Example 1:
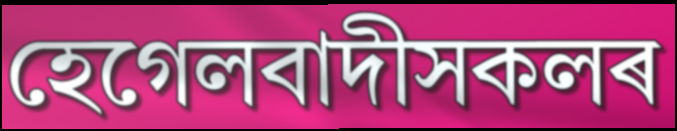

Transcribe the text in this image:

হেগেলবাদীসকলৰ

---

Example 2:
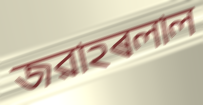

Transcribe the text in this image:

জৱাহৰলাল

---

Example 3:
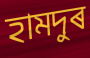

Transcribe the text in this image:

হামদুৰ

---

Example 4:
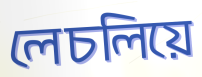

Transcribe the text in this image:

লেচলিয়ে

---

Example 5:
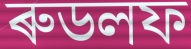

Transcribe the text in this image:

ৰুডলফ